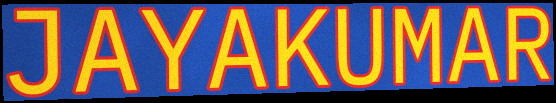
JAYAKUMAR